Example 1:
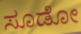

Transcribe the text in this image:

ಸೂಡೋ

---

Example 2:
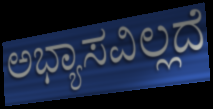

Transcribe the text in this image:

ಅಭ್ಯಾಸವಿಲ್ಲದೆ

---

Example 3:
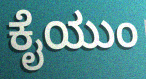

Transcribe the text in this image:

ಕೈಯುಂ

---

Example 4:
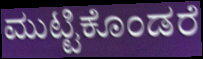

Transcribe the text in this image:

ಮುಟ್ಟಿಕೊಂಡರೆ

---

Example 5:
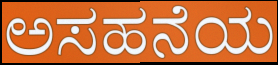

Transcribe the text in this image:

ಅಸಹನೆಯ